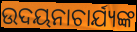
ଉଦୟନାଚାର୍ଯ୍ୟଙ୍କ